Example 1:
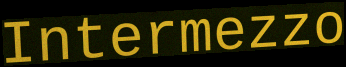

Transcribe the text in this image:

Intermezzo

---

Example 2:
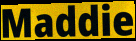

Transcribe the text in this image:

Maddie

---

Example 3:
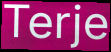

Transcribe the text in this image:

Terje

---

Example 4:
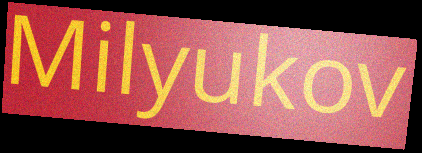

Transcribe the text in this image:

Milyukov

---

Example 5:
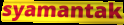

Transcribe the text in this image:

syamantak